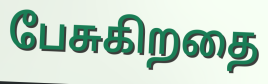
பேசுகிறதை